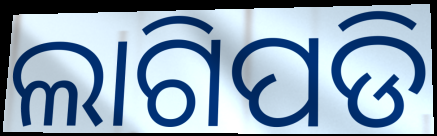
ଲାଗିପଡି